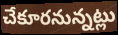
చేకూరనున్నట్లు